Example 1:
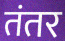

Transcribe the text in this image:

तंतर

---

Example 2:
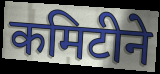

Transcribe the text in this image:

कमिटीने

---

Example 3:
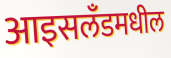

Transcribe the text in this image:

आइसलँडमधील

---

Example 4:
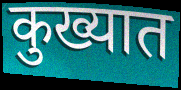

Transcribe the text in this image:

कुख्यात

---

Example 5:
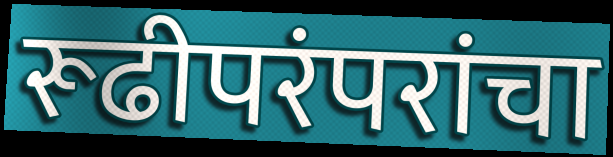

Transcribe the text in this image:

रूढीपरंपरांचा